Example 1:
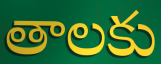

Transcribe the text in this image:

తాలకు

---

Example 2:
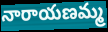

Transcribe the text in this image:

నారాయణమ్మ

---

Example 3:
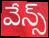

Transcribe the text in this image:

వేన్స్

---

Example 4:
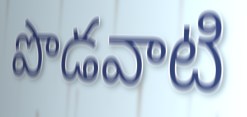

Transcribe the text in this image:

పొడవాటి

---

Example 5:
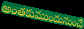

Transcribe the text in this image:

అంతకుముందునుంచే